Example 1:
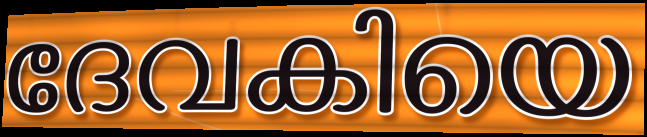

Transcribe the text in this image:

ദേവകിയെ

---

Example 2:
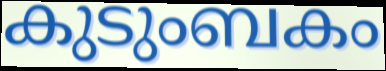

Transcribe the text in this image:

കുടുംബകം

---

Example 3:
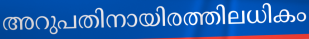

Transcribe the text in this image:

അറുപതിനായിരത്തിലധികം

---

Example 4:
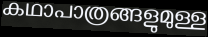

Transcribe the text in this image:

കഥാപാത്രങ്ങളുമുള്ള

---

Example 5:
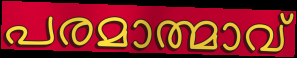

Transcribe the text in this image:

പരമാത്മാവ്